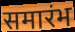
समारंभ